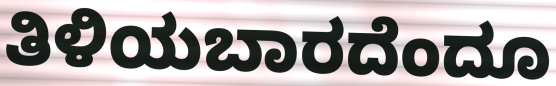
ತಿಳಿಯಬಾರದೆಂದೂ